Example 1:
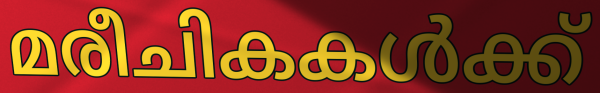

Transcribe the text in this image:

മരീചികകൾക്ക്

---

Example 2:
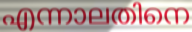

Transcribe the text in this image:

എന്നാലതിനെ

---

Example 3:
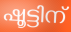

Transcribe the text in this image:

ഷൂട്ടിന്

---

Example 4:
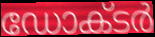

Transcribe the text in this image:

ഡോക്‌ടർ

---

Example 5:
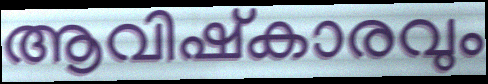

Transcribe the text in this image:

ആവിഷ്കാരവും